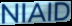
NIAID